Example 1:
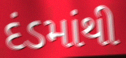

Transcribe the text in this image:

દંડમાંથી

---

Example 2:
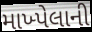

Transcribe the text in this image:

માખ્પેલાની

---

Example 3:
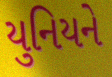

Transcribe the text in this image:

યુનિયને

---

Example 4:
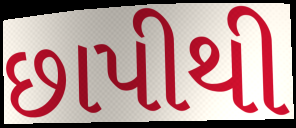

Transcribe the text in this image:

છાપીથી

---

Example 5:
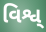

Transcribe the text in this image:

વિશ્વ્